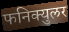
फनिक्युलर